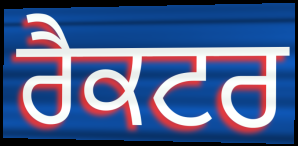
ਰੈਕਟਰ